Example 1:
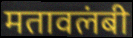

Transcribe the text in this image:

मतावलंबी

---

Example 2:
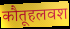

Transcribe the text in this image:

कौतूहलवश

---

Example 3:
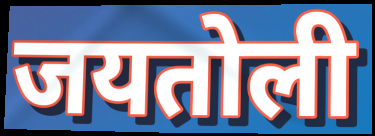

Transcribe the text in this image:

जयतोली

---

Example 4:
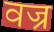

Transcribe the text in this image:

वज्र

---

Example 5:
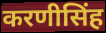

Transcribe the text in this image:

करणीसिंह